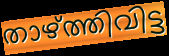
താഴ്ത്തിവിട്ട